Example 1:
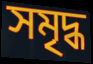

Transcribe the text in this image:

সমৃদ্ধ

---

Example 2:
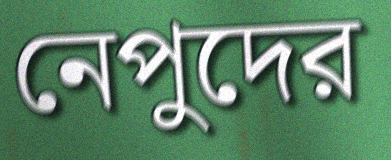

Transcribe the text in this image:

নেপুদের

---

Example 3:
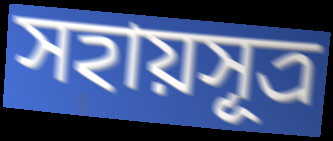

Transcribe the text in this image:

সহায়সূত্র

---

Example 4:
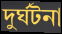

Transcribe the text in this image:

দুর্ঘটনা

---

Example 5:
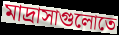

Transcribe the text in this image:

মাদ্রাসাগুলোতে